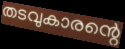
തടവുകാരന്റെ